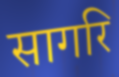
सागरि